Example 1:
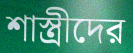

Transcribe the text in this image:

শাস্ত্রীদের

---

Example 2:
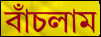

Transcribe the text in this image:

বাঁচলাম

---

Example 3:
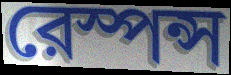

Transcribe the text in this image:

রেস্পন্স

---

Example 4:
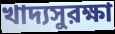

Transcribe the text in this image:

খাদ্যসুরক্ষা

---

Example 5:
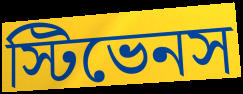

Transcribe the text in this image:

স্টিভেনস